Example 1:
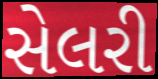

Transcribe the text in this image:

સેલરી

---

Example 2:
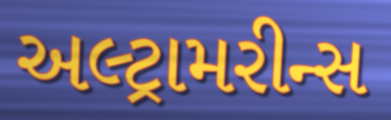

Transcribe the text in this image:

અલ્ટ્રામરીન્સ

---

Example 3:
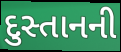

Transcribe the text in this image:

દુસ્તાનની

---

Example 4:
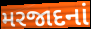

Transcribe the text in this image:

મરજાદનાં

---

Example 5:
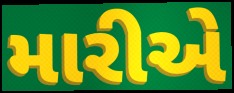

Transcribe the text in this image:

મારીએ